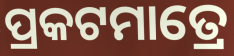
ପ୍ରକଟମାତ୍ରେ